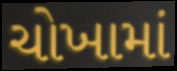
ચોખામાં